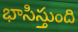
భాసిస్తుంది